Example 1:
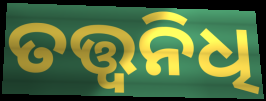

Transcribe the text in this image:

ତତ୍ତ୍ଵନିଧି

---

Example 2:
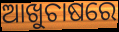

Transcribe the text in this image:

ଆଖୁଚାଷରେ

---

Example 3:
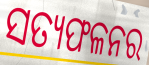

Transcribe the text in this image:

ସତ୍ୟଫଳନର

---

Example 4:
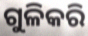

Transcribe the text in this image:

ଗୁଳିକରି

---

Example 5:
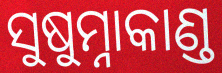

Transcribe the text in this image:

ସୁଷୁମ୍ନାକାଣ୍ଡ